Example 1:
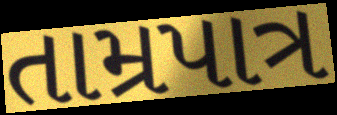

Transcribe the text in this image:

તામ્રપાત્ર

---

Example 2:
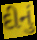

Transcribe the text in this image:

દીનું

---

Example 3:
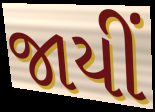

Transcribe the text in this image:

જાયીં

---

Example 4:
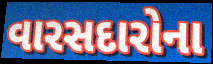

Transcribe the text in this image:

વારસદારોના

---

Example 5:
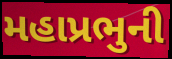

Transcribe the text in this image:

મહાપ્રભુની